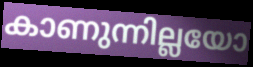
കാണുന്നില്ലയോ